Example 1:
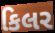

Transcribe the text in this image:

કિલર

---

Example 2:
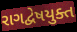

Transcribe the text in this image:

રાગદ્વેષયુક્ત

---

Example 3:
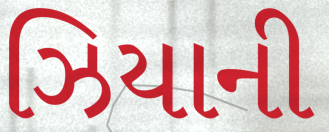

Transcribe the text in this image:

ઝિયાની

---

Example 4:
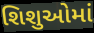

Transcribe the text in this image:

શિશુઓમાં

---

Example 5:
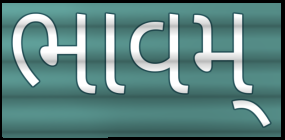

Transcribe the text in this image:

ભાવમ્